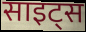
साइट्स